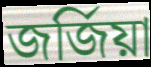
জৰ্জিয়া